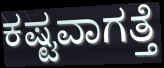
ಕಷ್ಟವಾಗತ್ತೆ